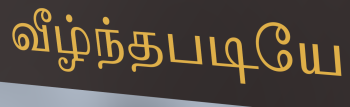
வீழ்ந்தபடியே